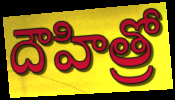
దౌహిత్రో